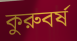
কুরুবর্ষ